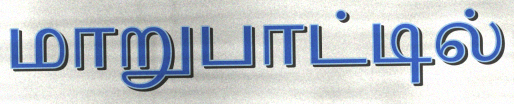
மாறுபாட்டில்